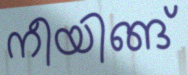
നീയിങ്ങ്